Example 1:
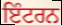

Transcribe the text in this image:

ਇੰਟਰਨ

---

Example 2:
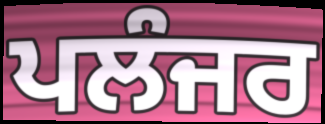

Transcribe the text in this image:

ਪਲੰਜਰ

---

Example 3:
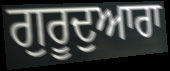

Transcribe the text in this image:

ਗੁਰੂਦੁਆਰਾ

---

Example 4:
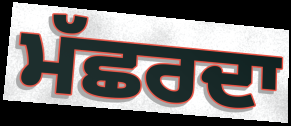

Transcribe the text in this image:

ਮੱਛਰਦਾ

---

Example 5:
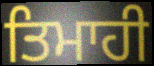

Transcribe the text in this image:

ਤਿਮਾਹੀ